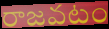
రాజవటం